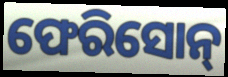
ଫେରିସୋନ୍